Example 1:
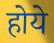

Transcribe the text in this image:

होये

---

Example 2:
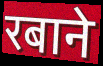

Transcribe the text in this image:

रबाने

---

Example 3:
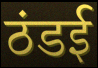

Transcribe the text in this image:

ठंडई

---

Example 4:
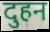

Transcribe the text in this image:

दुहन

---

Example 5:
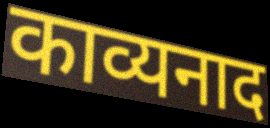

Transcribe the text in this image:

काव्यनाद